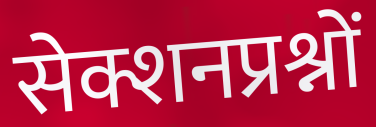
सेक्शनप्रश्नों